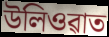
উলিওৱাত